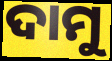
ଦାମୁ